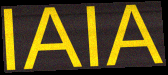
IAIA